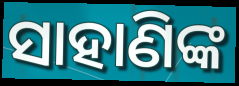
ସାହାଣିଙ୍କ